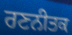
ਰਣਨੀਤਕ